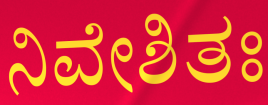
ನಿವೇಶಿತಃ